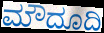
ಮೌದೂದಿ